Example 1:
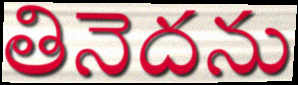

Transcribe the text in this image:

తినెదను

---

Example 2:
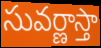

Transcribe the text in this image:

సువర్ణాస్తా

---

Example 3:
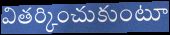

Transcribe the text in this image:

వితర్కించుకుంటూ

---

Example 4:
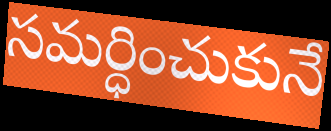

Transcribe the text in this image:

సమర్ధించుకునే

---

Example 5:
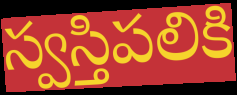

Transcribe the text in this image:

స్వస్తిపలికి